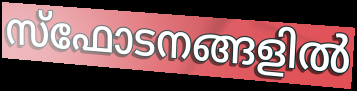
സ്ഫോടനങ്ങളിൽ